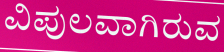
ವಿಪುಲವಾಗಿರುವ